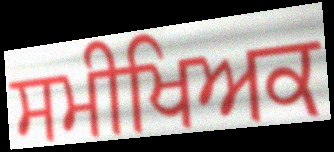
ਸਮੀਖਿਅਕ